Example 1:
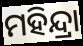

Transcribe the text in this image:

ମହିନ୍ଦ୍ରା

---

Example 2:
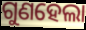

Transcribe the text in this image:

ଗୁଣହେଲା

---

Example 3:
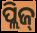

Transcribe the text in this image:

ପ୍ଲିଜ୍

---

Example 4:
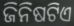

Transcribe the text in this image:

ଜିନିଷଟିଏ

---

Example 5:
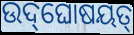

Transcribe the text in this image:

ଉଦ୍‌ଘୋଷୟତ୍